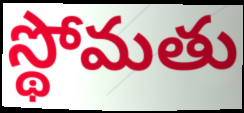
స్థోమతు